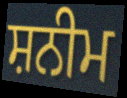
ਸ਼ਨੀਮ